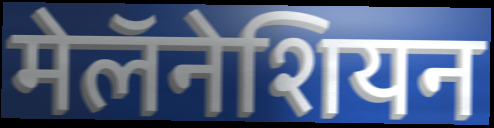
मेलॅनेशियन